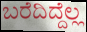
ಬರೆದಿದ್ದೆಲ್ಲ